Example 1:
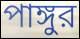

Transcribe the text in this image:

পাঙ্গুর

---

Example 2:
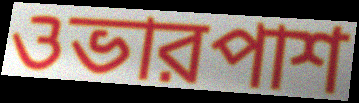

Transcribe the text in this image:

ওভারপাশ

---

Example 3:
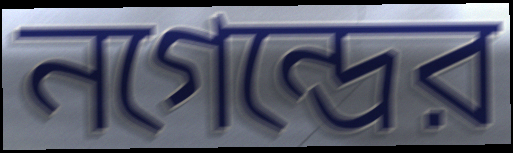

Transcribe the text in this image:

নগেন্দ্রের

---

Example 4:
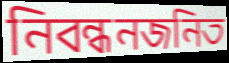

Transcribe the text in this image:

নিবন্ধনজনিত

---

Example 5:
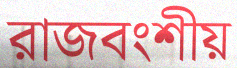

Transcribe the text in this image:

রাজবংশীয়